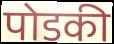
पोडकी